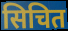
सिचित